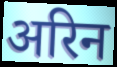
अरिन